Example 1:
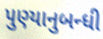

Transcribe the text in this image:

પુણ્યાનુબન્ધી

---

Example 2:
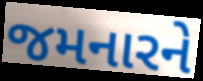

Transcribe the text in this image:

જમનારને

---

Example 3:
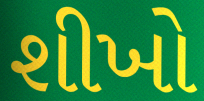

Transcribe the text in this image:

શીખો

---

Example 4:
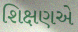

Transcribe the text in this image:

શિક્ષણએ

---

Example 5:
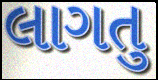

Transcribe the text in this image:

લાગતુ